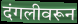
दंगलीवरून